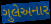
ગુલેઅનાર